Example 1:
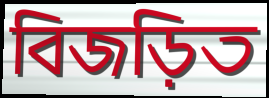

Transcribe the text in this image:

বিজড়িত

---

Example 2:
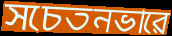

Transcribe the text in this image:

সচেতনভাৱে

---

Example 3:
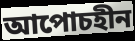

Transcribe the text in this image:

আপোচহীন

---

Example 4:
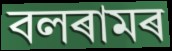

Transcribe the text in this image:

বলৰামৰ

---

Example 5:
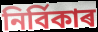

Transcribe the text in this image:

নিৰ্বিকাৰ